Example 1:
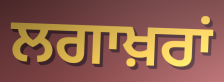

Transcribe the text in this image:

ਲਗਾਖ਼ਰਾਂ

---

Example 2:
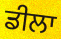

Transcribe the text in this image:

ਡੀਲਾ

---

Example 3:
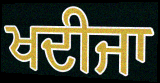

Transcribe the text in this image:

ਖਦੀਜਾ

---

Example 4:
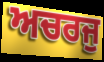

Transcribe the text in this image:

ਅਚਰਜੁ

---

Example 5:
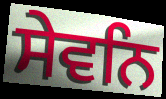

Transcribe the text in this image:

ਸੇਵਨਿ